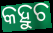
କହୁଚ